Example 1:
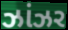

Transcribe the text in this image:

ઝાંઝર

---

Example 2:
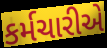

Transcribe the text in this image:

કર્મચારીએ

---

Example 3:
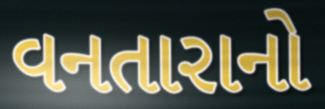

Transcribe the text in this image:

વનતારાનો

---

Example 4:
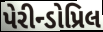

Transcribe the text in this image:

પેરીન્ડોપ્રિલ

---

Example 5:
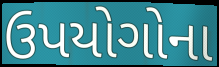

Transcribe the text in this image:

ઉપયોગોના